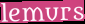
lemurs